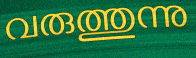
വരുത്തുന്നു